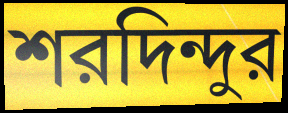
শরদিন্দুর